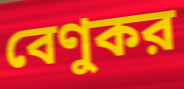
বেণুকর